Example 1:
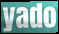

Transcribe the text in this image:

yado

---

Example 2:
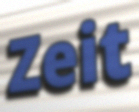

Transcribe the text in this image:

Zeit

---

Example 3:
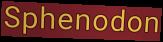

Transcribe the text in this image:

Sphenodon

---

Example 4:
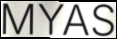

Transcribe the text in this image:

MYAS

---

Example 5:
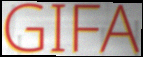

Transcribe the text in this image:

GIFA